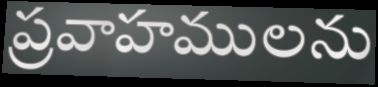
ప్రవాహములను